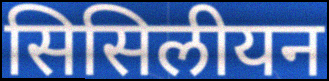
सिसिलीयन